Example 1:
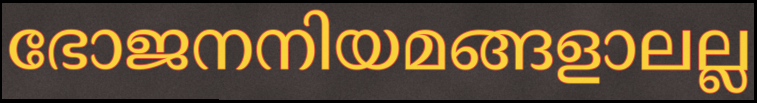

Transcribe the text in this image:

ഭോജനനിയമങ്ങളാലല്ല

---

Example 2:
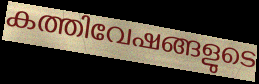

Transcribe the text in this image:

കത്തിവേഷങ്ങളുടെ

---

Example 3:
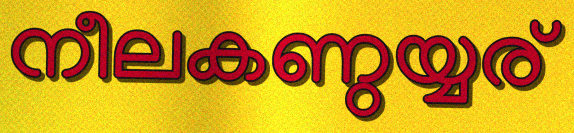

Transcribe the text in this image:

നീലകണ്ഠയ്യര്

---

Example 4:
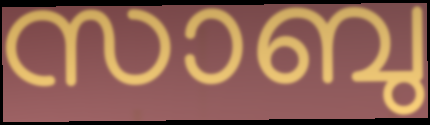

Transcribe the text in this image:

സാബു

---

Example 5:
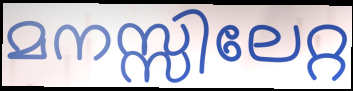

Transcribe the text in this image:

മനസ്സിലേറ്റ